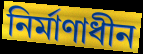
নির্মাণাধীন